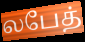
லபேத்